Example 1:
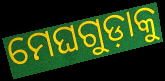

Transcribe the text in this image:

ମେଘଗୁଡ଼ାକୁ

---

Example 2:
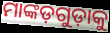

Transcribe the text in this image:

ମାଙ୍କଡ଼ଗୁଡ଼ାକୁ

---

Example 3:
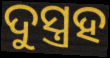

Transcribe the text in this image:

ଦୁସ୍ତ୍ରହ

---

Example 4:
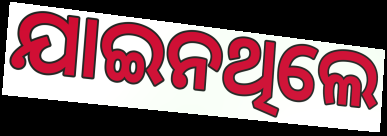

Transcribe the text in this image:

ଯାଇନଥିଲେ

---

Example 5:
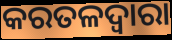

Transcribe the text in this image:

କରତଳଦ୍ଵାରା